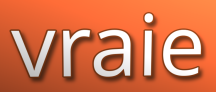
vraie